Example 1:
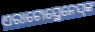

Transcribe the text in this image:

ଏରାଟୋସ୍ଥେନେସ୍‌ଙ୍କ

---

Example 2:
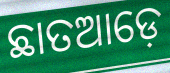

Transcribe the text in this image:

ଛାତଆଡ଼େ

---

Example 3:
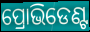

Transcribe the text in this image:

ପ୍ରୋଭିଡେଣ୍ଟ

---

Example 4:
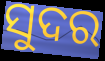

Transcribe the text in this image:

ସୁଦର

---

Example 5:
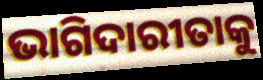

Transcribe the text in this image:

ଭାଗିଦାରୀତାକୁ